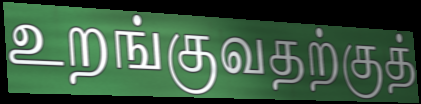
உறங்குவதற்குத்